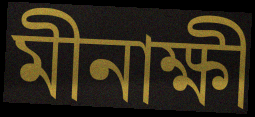
মীনাক্ষী